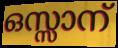
ഒസ്സാന്